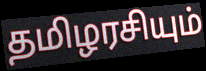
தமிழரசியும்